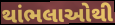
થાંભલાઓથી